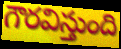
గౌరవిస్తుంది